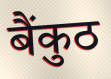
बैंकुठ